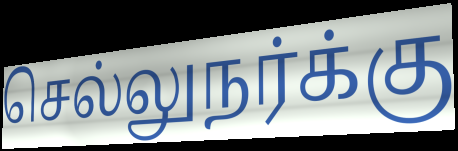
செல்லுநர்க்கு